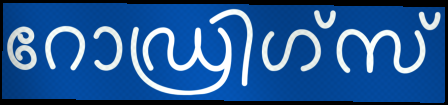
റോഡ്രിഗ്സ്